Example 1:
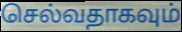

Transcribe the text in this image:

செல்வதாகவும்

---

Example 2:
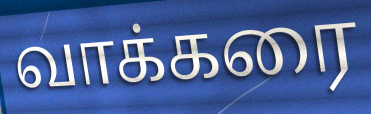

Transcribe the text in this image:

வாக்கரை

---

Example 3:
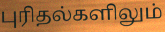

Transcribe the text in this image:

புரிதல்களிலும்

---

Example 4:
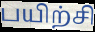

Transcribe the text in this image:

பயிற்சி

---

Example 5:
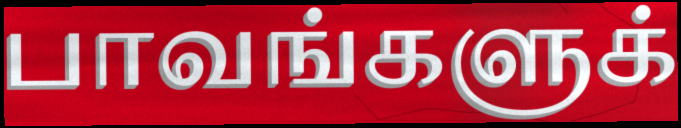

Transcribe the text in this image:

பாவங்களுக்